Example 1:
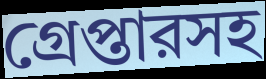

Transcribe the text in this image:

গ্রেপ্তারসহ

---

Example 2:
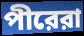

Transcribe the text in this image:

পীরেরা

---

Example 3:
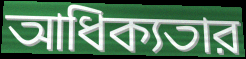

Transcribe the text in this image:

আধিক্যতার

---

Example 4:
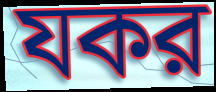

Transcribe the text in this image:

যকর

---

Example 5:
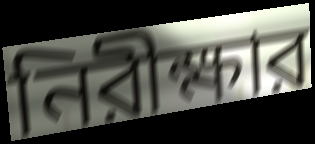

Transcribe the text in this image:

নিরীক্ষার